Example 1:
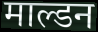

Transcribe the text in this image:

माल्डन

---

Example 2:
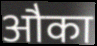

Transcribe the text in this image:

औका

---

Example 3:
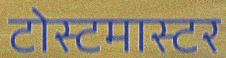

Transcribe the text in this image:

टोस्टमास्टर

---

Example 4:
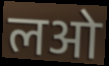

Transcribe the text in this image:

लओ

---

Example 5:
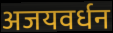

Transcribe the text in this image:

अजयवर्धन